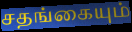
சதங்கையும்